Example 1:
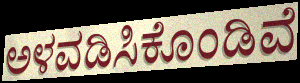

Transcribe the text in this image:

ಅಳವಡಿಸಿಕೊಂಡಿವೆ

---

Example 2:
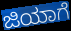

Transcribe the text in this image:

ಜಿಯಾಗೆ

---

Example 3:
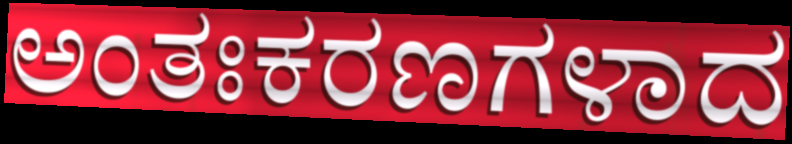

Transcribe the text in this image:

ಅಂತಃಕರಣಗಳಾದ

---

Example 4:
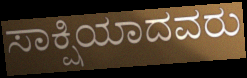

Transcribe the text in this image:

ಸಾಕ್ಷಿಯಾದವರು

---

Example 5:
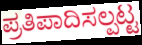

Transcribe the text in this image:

ಪ್ರತಿಪಾದಿಸಲ್ಪಟ್ಟ